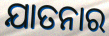
ଯାତନାର